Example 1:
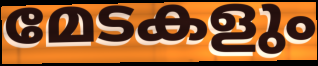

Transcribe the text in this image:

മേടകളും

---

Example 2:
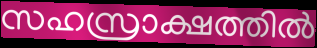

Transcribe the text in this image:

സഹസ്രാക്ഷത്തിൽ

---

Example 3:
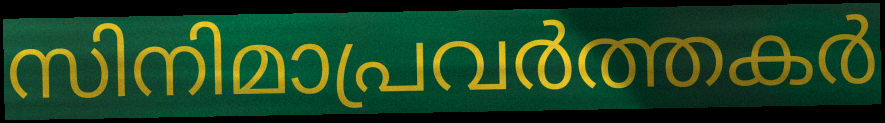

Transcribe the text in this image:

സിനിമാപ്രവർത്തകർ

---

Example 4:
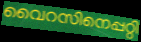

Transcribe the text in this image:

വൈറസിനെപ്പറ്റി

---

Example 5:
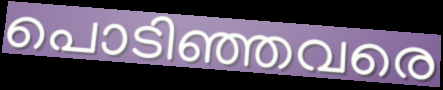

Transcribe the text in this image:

പൊടിഞ്ഞവരെ